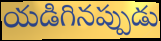
యడిగినప్పుడు